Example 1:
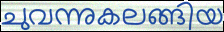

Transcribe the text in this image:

ചുവന്നുകലങ്ങിയ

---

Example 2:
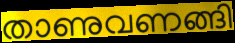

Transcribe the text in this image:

താണുവണങ്ങി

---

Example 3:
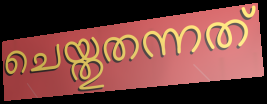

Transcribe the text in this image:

ചെയ്തുതന്നത്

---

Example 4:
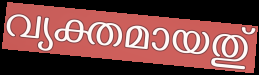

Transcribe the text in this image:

വ്യക്തമായതു്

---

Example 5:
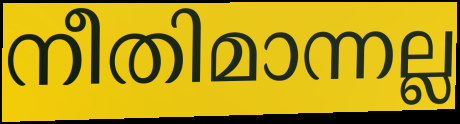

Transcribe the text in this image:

നീതിമാന്നല്ല